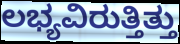
ಲಭ್ಯವಿರುತ್ತಿತ್ತು